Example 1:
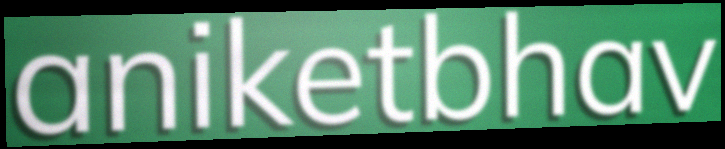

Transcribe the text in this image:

aniketbhav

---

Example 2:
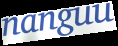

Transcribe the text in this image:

nanguu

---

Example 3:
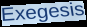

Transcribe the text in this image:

Exegesis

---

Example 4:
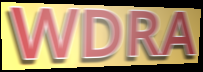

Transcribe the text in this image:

WDRA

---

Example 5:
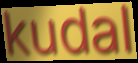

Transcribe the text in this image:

kudal